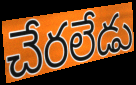
చేరలేడు